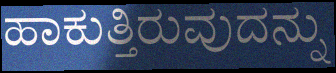
ಹಾಕುತ್ತಿರುವುದನ್ನು